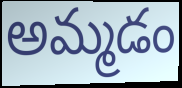
అమ్మడం